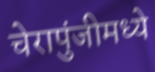
चेरापुंजीमध्ये